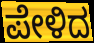
ಪೇಳಿದ